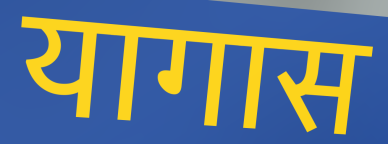
यागास